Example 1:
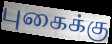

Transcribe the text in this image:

புகைக்கு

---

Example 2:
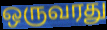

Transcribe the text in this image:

ஒருவரது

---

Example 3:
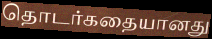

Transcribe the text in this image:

தொடர்கதையானது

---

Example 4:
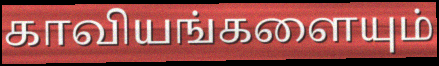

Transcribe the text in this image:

காவியங்களையும்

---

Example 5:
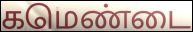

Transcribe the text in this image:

கமெண்டை